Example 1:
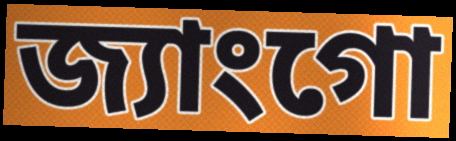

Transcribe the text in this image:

জ্যাংগো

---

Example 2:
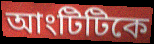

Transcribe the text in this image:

আংটিটিকে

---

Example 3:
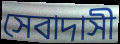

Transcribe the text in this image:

সেবাদাসী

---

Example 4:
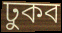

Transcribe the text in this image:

ঢুকব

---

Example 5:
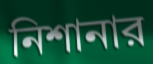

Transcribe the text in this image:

নিশানার